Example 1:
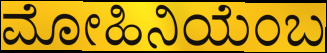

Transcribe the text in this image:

ಮೋಹಿನಿಯೆಂಬ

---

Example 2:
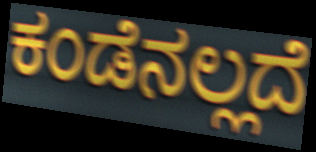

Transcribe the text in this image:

ಕಂಡೆನಲ್ಲದೆ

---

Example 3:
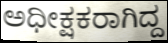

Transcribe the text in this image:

ಅಧೀಕ್ಷಕರಾಗಿದ್ದ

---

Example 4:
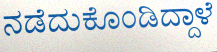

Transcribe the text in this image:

ನಡೆದುಕೊಂಡಿದ್ದಾಳೆ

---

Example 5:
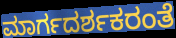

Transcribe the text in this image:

ಮಾರ್ಗದರ್ಶಕರಂತೆ